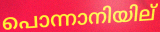
പൊന്നാനിയില്